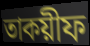
তাকয়ীফ